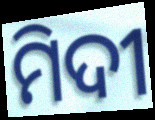
ମିଦୀ